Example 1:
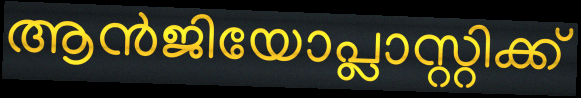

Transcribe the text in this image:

ആൻജിയോപ്ലാസ്റ്റിക്ക്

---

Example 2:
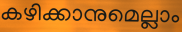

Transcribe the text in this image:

കഴിക്കാനുമെല്ലാം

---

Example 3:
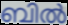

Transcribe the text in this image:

ബിൽ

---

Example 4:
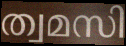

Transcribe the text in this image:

ത്വമസി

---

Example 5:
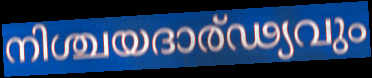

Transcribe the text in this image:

നിശ്ചയദാര്ഢ്യവും